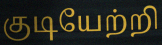
குடியேற்றி